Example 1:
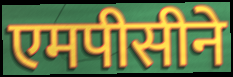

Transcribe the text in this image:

एमपीसीने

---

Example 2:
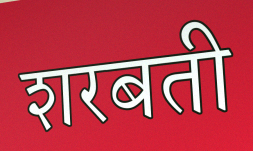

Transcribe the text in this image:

शरबती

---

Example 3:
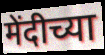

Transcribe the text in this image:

मेंदीच्या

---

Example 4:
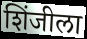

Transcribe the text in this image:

शिंजीला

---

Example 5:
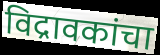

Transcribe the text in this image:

विद्रावकांचा